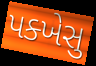
પક્ખેસુ